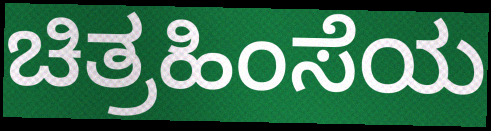
ಚಿತ್ರಹಿಂಸೆಯ